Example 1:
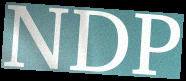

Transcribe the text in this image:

NDP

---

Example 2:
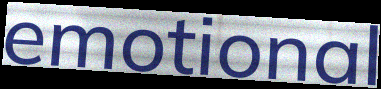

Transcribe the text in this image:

emotional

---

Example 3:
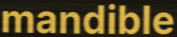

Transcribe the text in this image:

mandible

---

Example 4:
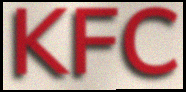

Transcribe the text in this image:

KFC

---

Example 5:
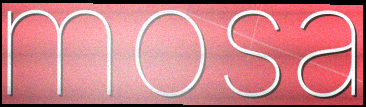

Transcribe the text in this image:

mosa